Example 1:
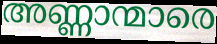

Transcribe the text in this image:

അണ്ണാന്മാരെ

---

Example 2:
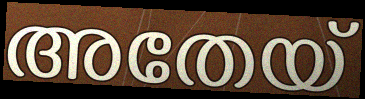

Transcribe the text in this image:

അതേയ്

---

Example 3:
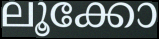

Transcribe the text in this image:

ലൂക്കോ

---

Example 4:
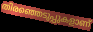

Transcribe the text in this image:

തിരഞ്ഞെടുപ്പുകളാണ്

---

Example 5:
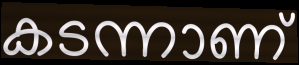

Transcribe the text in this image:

കടന്നാണ്